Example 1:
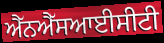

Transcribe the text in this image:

ਐੱਨਐੱਸਆਈਸੀਟੀ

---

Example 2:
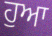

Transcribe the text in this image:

ਹੁਆ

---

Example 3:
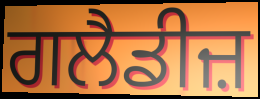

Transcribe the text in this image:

ਗਲੈਡੀਜ਼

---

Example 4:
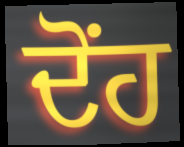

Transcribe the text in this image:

ਦੋਂਹ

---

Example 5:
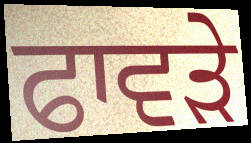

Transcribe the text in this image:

ਫਾਵੜੇ